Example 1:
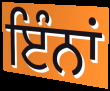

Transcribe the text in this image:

ਇੰਨਾਂ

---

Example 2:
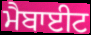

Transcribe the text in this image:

ਮੈਬਾਈਟ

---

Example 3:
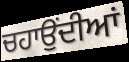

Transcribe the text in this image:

ਚਹਾਉਂਦੀਆਂ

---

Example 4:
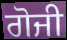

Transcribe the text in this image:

ਗੋਜੀ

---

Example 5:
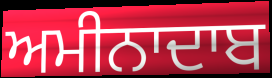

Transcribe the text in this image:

ਅਮੀਨਾਦਾਬ